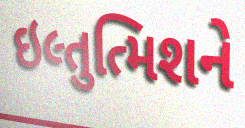
ઇલ્તુત્મિશને